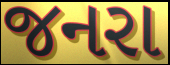
જનરા